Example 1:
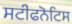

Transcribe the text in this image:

ਸਟੀਫਨੋਟਿਸ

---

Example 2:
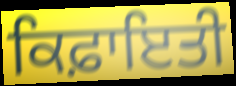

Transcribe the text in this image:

ਕਿਫ਼ਾਇਤੀ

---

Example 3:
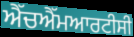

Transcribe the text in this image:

ਐੱਚਐੱਮਆਰਟੀਸੀ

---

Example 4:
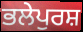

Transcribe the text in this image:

ਭਲੇਪੁਰਸ਼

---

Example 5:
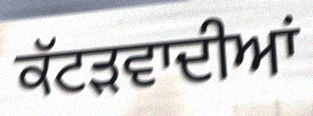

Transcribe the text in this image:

ਕੱਟੜਵਾਦੀਆਂ